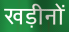
खड़ीनों